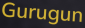
Gurugun